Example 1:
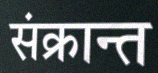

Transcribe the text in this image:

संक्रान्त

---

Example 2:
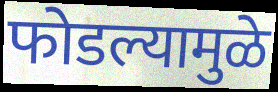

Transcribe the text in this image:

फोडल्यामुळे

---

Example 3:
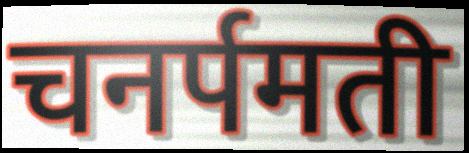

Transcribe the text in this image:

चनर्पमती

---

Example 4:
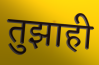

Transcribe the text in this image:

तुझाही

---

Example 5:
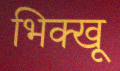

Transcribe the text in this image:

भिक्खू